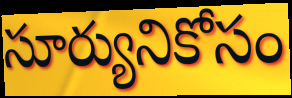
సూర్యునికోసం